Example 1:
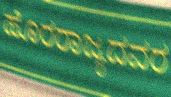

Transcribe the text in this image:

ಹೊರರಾಜ್ಯದವರ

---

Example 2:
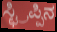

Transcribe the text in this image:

ಸ್ಟ್ರಿಪ್ಪಿನ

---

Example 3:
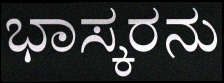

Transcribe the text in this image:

ಭಾಸ್ಕರನು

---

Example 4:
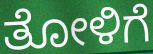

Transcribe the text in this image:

ತೋಳಿಗೆ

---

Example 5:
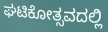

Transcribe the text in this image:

ಘಟಿಕೋತ್ಸವದಲ್ಲಿ